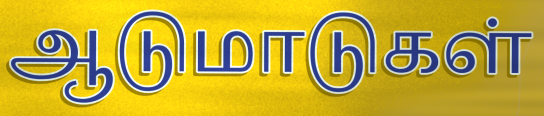
ஆடுமாடுகள்